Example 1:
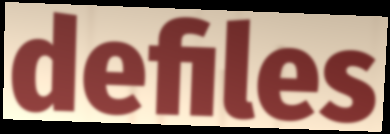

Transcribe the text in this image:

defiles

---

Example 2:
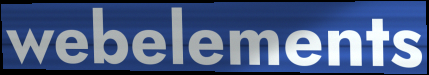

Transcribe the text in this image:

webelements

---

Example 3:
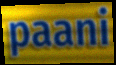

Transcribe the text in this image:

paani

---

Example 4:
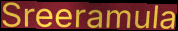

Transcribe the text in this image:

Sreeramula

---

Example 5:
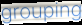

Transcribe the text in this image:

grouping